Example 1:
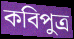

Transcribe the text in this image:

কবিপুত্র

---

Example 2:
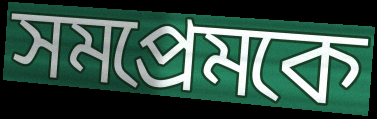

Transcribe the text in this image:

সমপ্রেমকে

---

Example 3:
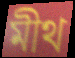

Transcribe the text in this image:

মীথ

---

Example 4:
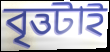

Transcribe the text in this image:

বৃত্তটাই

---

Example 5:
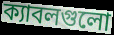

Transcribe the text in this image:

ক্যাবলগুলো